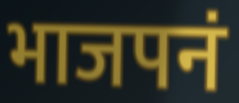
भाजपनं